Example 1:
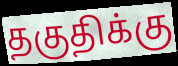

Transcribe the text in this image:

தகுதிக்கு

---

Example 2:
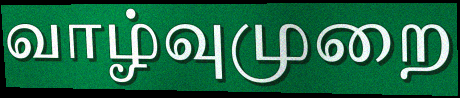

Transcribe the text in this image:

வாழ்வுமுறை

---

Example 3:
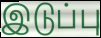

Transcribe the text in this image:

இடுப்பு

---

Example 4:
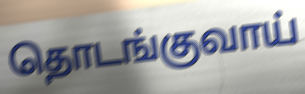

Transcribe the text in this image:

தொடங்குவாய்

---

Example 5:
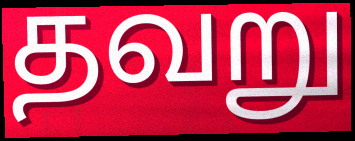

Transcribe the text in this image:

தவறு